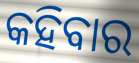
କହିବାର